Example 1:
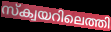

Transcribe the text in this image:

സ്ക്വയറിലെത്തി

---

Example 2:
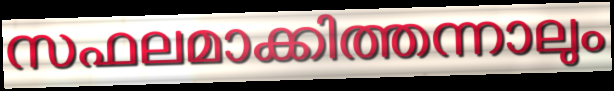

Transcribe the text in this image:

സഫലമാക്കിത്തന്നാലും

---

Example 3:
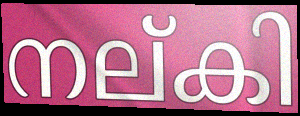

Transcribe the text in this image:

നല്കി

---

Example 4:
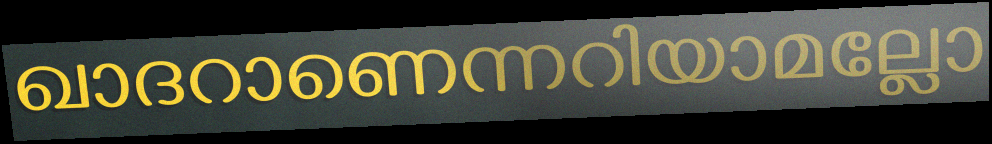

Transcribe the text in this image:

ഖാദറാണെന്നറിയാമല്ലോ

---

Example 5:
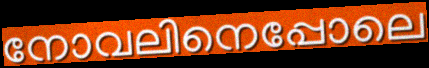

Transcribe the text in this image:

നോവലിനെപ്പോലെ